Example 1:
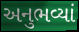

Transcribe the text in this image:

અનુભવ્યાં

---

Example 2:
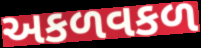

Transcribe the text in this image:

અકળવકળ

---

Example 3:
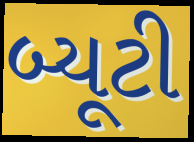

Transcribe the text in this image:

બ્યૂટી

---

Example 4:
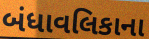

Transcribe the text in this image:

બંધાવલિકાના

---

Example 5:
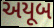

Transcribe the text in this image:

અયૂબ